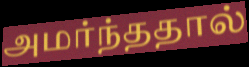
அமர்ந்ததால்